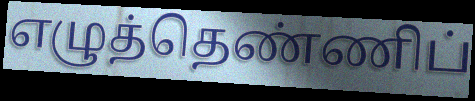
எழுத்தெண்ணிப்